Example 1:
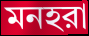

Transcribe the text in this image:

মনহরা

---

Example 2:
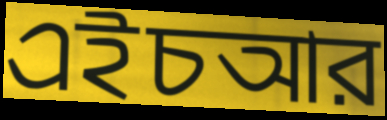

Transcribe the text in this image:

এইচআর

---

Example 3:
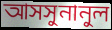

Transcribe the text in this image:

আসসুনানুল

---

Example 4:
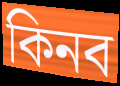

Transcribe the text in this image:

কিনব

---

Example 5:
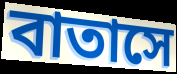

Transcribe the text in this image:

বাতাসে